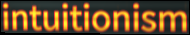
intuitionism